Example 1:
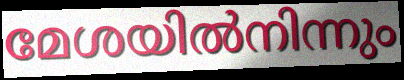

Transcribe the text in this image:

മേശയിൽനിന്നും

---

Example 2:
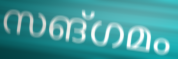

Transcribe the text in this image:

സങ്ഗമം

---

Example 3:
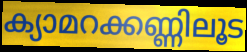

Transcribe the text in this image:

ക്യാമറക്കണ്ണിലൂട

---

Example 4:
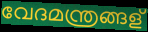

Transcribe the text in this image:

വേദമന്ത്രങ്ങള്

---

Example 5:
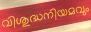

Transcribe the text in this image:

വിശുദ്ധനിയമവും